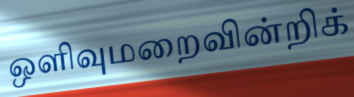
ஒளிவுமறைவின்றிக்